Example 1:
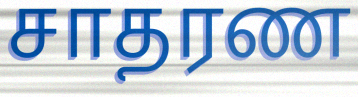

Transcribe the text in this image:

சாதரண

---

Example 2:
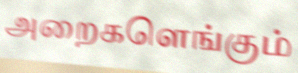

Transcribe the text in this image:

அறைகளெங்கும்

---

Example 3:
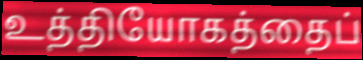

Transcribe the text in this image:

உத்தியோகத்தைப்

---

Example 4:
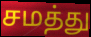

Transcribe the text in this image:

சமத்து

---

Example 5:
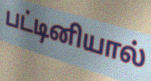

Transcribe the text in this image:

பட்டினியால்